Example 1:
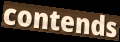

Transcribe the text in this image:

contends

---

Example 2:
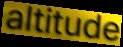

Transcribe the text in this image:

altitude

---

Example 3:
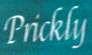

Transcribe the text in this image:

Prickly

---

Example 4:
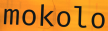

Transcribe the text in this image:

mokolo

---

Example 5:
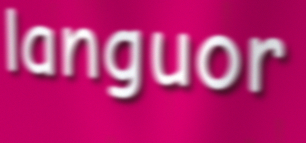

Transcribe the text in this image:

languor